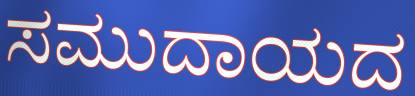
ಸಮುದಾಯದ